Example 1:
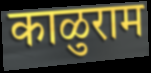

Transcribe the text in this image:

काळुराम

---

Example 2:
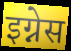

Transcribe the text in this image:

इग्नेस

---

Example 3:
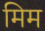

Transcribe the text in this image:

मिम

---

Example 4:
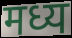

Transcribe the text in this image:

मध्य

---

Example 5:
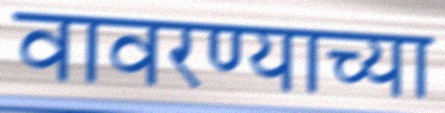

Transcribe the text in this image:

वावरण्याच्या